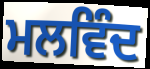
ਮਲਵਿੰਦ